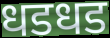
धडधड